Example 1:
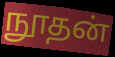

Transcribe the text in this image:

நூதன்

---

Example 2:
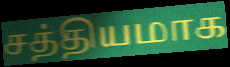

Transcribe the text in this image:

சத்தியமாக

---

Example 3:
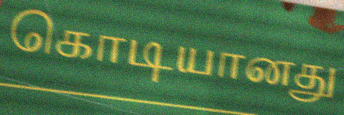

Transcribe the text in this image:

கொடியானது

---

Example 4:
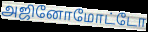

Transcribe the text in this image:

அஜினோமோட்டோ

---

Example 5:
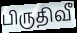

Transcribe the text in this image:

பிருதிவீ